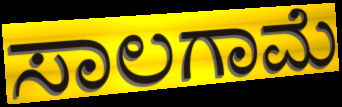
ಸಾಲಗಾಮೆ